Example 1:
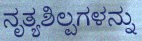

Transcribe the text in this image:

ನೃತ್ಯಶಿಲ್ಪಗಳನ್ನು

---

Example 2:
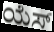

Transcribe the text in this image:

ಯೆಸ್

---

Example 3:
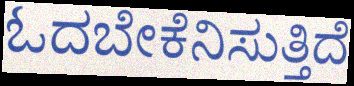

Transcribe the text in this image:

ಓದಬೇಕೆನಿಸುತ್ತಿದೆ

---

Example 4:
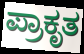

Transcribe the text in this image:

ಪ್ರಾಕೃತ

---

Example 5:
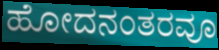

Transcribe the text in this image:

ಹೋದನಂತರವೂ